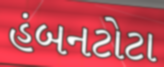
હંબનટોટા